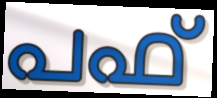
പഫ്